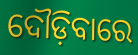
ଦୌଡ଼ିବାରେ